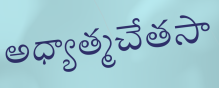
అధ్యాత్మచేతసా